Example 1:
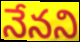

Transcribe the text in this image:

నేనని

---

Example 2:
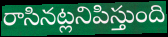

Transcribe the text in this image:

రాసినట్లనిపిస్తుంది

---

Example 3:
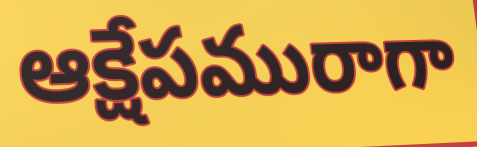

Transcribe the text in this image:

ఆక్షేపమురాగా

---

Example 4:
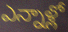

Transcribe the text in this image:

ఎన్నాళ్లో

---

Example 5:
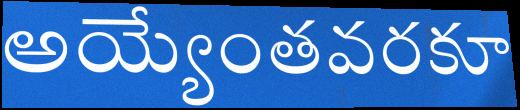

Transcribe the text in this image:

అయ్యేంతవరకూ